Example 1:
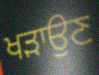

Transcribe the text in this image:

ਖੜਾਉਣ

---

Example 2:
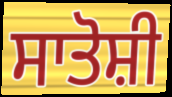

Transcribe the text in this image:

ਸਾਤੋਸ਼ੀ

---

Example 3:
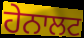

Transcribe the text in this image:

ਹੇਨਾਲਟ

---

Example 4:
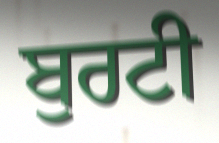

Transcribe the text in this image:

ਬੁਰਟੀ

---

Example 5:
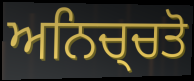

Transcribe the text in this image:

ਅਨਿਚ੍ਚਤੋ